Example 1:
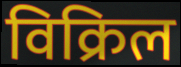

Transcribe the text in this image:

विक्रिल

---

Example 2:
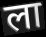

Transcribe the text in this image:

ला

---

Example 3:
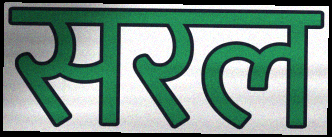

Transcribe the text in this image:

सरल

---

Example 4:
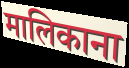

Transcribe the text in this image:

मालिकाना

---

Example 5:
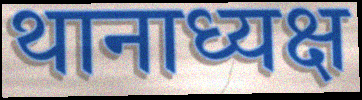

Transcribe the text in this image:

थानाध्यक्ष